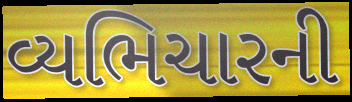
વ્યભિચારની